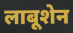
लाबूशेन